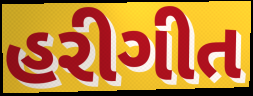
હરીગીત